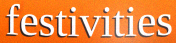
festivities